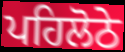
ਪਹਿਲੋਠੇ